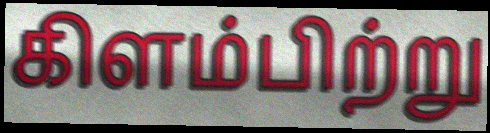
கிளம்பிற்று